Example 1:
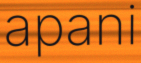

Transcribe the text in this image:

apani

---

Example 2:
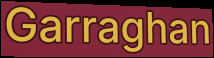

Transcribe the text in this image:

Garraghan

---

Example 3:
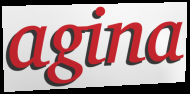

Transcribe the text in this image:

agina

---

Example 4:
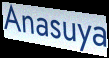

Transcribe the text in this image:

Anasuya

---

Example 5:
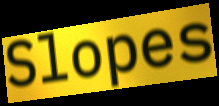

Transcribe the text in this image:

Slopes